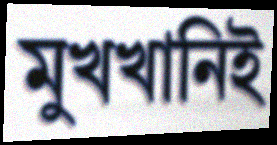
মুখখানিই